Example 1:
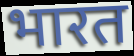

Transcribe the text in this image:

भारत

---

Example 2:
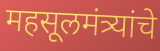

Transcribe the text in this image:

महसूलमंत्र्यांचे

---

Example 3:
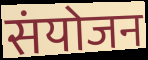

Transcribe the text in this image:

संयोजन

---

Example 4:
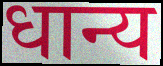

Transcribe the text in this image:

धान्य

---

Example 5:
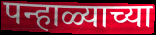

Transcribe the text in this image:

पन्हाळ्याच्या